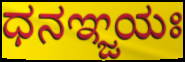
ಧನಞ್ಜಯಃ